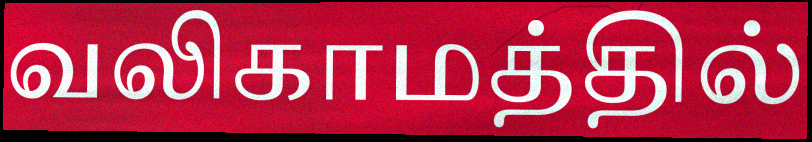
வலிகாமத்தில்